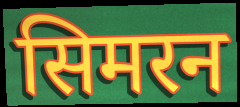
सिमरन